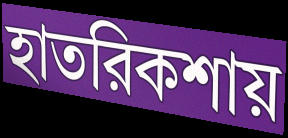
হাতরিকশায়